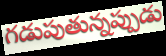
గడుపుతున్నప్పుడు